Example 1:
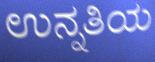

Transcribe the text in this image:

ಉನ್ನತಿಯ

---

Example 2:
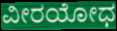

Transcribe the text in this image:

ವೀರಯೋಧ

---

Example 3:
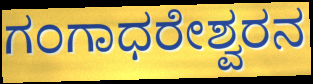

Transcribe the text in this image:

ಗಂಗಾಧರೇಶ್ವರನ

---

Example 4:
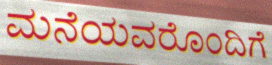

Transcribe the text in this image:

ಮನೆಯವರೊಂದಿಗೆ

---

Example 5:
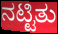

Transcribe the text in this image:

ನಟ್ಟಿತು